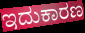
ಇದುಕಾರಣ